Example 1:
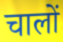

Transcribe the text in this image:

चालों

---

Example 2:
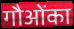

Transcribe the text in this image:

गौओंका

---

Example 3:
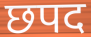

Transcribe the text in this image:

छपद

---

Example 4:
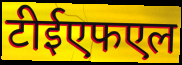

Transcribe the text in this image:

टीईएफएल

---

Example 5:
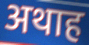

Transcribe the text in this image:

अथाह